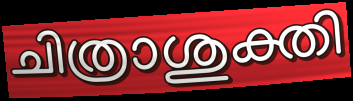
ചിത്രാശുക്തി